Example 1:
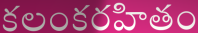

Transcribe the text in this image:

కలంకరహితం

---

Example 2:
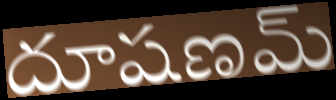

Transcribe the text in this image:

దూషణమ్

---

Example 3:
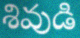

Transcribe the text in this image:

శివుడి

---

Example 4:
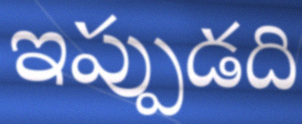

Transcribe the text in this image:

ఇప్పుడది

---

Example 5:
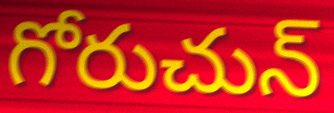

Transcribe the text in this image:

గోరుచున్